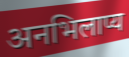
अनभिलाप्य